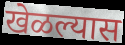
खेळल्यास